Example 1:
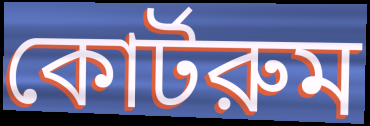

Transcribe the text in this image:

কোর্টরুম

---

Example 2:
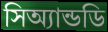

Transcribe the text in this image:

সিঅ্যান্ডডি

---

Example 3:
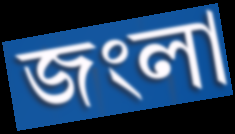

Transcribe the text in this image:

জংলা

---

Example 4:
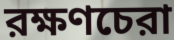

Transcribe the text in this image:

রক্ষণচেরা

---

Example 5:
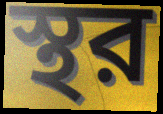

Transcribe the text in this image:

স্থর